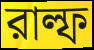
রাল্ফ